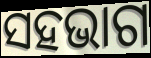
ସହଭାଗ